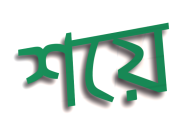
শয়ে